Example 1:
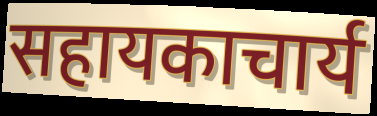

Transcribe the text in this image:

सहायकाचार्य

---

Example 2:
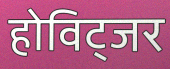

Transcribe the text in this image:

होविट्जर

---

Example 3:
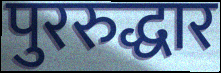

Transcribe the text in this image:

पुररुद्धार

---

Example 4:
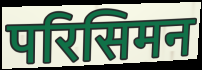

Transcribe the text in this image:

परिसिमन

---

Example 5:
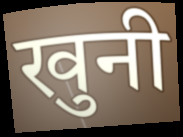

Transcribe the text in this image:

खुनी